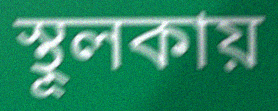
স্থূলকায়